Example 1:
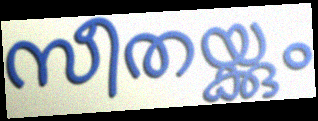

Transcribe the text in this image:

സീതയ്ക്കും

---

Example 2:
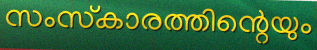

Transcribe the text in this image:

സംസ്‌കാരത്തിന്റെയും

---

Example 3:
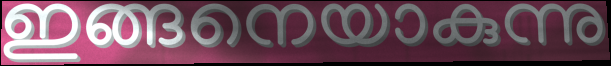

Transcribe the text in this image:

ഇങ്ങനെയാകുന്നു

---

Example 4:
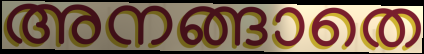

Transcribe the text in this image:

അനങ്ങാതെ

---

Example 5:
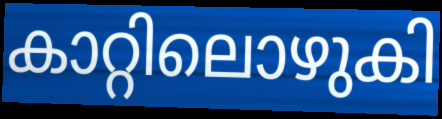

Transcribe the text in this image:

കാറ്റിലൊഴുകി